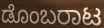
ಡೊಂಬರಾಟ